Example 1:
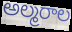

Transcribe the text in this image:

అల్మరాల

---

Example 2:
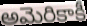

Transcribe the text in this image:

అమెరికాకీ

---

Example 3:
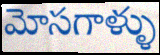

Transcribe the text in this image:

మోసగాళ్ళు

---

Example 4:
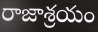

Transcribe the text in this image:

రాజాశ్రయం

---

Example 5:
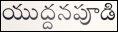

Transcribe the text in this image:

యుద్దనపూడి